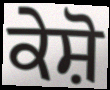
ਕੇਸ਼ੋ